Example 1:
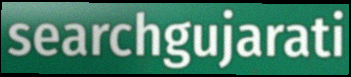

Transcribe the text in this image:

searchgujarati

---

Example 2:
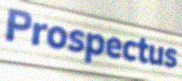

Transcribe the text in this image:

Prospectus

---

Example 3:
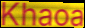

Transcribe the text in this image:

Khaoa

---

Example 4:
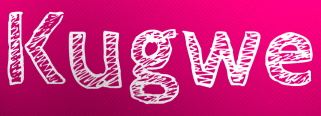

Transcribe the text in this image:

Kugwe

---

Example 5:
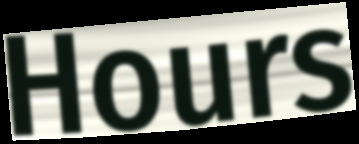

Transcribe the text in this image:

Hours